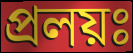
প্রলয়ঃ